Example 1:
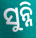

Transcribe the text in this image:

ସୁନ୍ନି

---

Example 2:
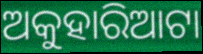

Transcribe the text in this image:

ଅକୁହାରିଆଟା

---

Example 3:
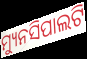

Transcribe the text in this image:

ମ୍ୟୁନସିପାଲଟି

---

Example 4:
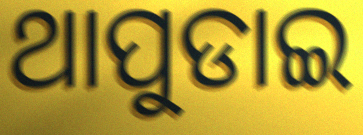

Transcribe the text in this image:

ଥାପୁଡାଇ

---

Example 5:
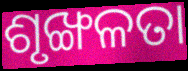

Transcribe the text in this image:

ଶୃଙ୍ଖଳତା